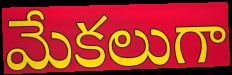
మేకలుగా